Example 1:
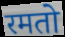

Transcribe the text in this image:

रमतो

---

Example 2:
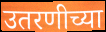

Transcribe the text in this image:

उतरणीच्या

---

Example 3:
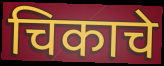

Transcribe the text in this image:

चिकाचे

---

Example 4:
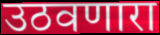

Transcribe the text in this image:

उठवणारा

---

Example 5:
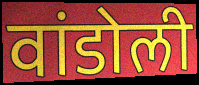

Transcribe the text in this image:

वांडोली